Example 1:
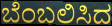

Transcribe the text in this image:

ಬೆಂಬಲಿಸಿದ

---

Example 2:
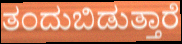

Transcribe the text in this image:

ತಂದುಬಿಡುತ್ತಾರೆ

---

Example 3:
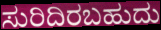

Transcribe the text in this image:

ಸುರಿದಿರಬಹುದು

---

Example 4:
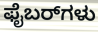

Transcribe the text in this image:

ಫೈಬರ್‌ಗಳು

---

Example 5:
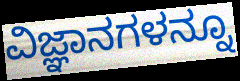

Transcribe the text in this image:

ವಿಜ್ಞಾನಗಳನ್ನೂ